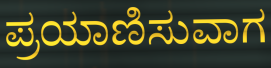
ಪ್ರಯಾಣಿಸುವಾಗ